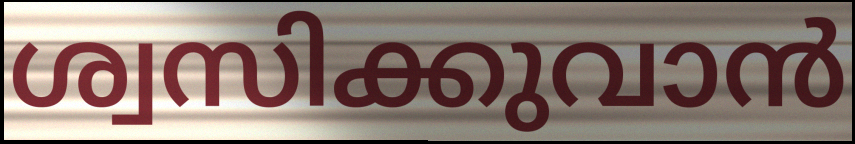
ശ്വസിക്കുവാൻ